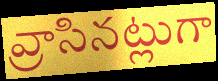
వ్రాసినట్లుగా